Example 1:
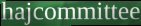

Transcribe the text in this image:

hajcommittee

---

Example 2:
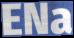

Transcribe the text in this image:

ENa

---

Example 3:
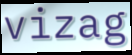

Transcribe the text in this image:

vizag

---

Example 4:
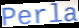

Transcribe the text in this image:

Perla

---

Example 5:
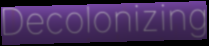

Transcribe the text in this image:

Decolonizing